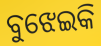
ବୁଝେଇକି